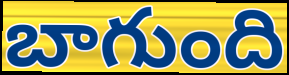
బాగుంది